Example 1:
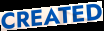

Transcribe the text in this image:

CREATED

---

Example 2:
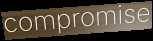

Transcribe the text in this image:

compromise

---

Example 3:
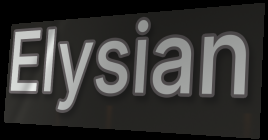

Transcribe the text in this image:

Elysian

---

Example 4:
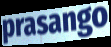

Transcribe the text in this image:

prasango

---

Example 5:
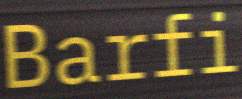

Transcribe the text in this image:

Barfi